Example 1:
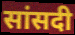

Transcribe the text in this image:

सांसदी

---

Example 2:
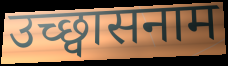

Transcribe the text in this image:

उच्छ्वासनाम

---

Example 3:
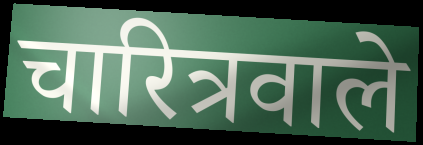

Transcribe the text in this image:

चारित्रवाले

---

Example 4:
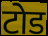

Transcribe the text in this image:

टोड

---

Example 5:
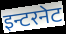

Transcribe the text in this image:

इन्‍टरनेट